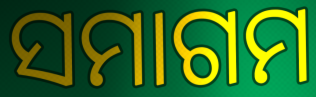
ସମାଗମ